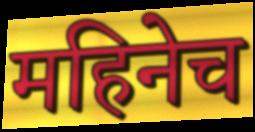
महिनेच